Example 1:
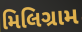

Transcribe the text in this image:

મિલિગ્રામ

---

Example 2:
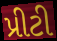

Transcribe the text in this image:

પ્રીટી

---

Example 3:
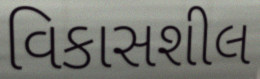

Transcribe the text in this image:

વિકાસશીલ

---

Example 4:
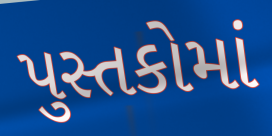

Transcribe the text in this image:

પુસ્તકોમાં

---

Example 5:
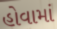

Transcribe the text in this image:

હોવામાં